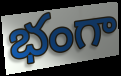
భంగా